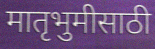
मातृभुमीसाठी